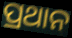
ପ୍ରଥାନ